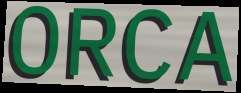
ORCA